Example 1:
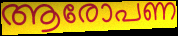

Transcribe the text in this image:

ആരോപണ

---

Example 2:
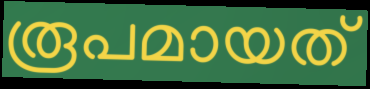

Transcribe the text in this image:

രൂപമായത്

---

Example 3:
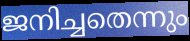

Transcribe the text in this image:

ജനിച്ചതെന്നും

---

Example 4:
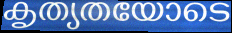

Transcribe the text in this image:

കൃത്യതയോടെ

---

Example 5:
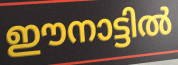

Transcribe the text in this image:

ഈനാട്ടിൽ